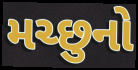
મચ્છુનો